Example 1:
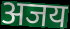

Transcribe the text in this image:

अजय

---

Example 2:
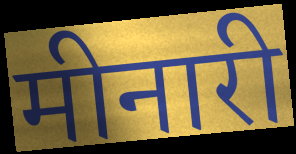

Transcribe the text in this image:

मीनारी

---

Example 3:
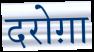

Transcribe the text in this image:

दरोग़ा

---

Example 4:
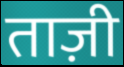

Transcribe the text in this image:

ताज़ी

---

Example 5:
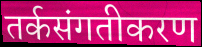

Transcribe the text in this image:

तर्कसंगतीकरण